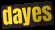
dayes